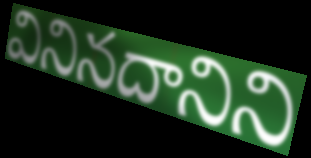
వినినదానిని